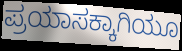
ಪ್ರಯಾಸಕ್ಕಾಗಿಯೂ